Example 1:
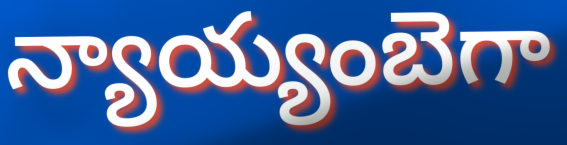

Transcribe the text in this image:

న్యాయ్యంబెగా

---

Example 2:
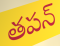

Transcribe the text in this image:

తపన్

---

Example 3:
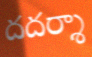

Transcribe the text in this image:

దదర్శా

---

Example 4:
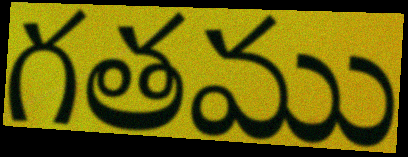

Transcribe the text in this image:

గతము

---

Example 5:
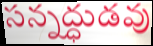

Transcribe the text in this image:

సన్నద్ధుడవు